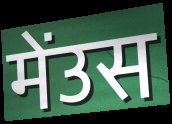
मेंउस